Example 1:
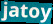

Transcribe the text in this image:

jatoy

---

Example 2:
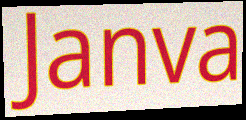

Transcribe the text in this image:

Janva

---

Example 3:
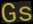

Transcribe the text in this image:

Gs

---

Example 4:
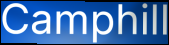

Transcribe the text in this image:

Camphill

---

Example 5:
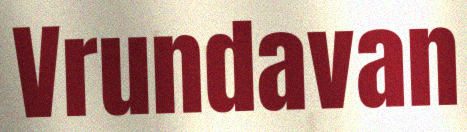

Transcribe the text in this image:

Vrundavan